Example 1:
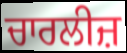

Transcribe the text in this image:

ਚਾਰਲੀਜ਼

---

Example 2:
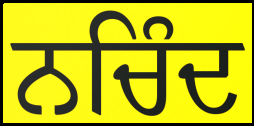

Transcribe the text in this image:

ਨਚਿੰਦ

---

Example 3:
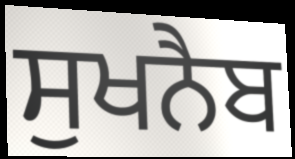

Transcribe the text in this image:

ਸੁਖਨੈਬ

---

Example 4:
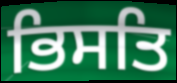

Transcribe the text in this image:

ਭਿਸਤਿ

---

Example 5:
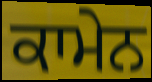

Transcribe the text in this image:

ਕਾਮੇਨ